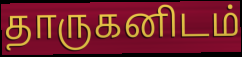
தாருகனிடம்